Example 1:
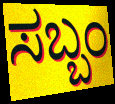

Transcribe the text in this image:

ಸಬ್ಬಂ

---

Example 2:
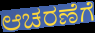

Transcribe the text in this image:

ಆಚರಣೆಗೆ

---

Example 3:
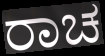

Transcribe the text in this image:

ರಾಚ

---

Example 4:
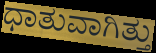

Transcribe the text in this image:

ಧಾತುವಾಗಿತ್ತು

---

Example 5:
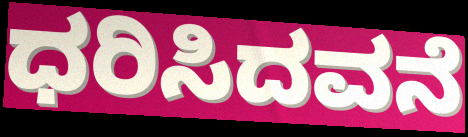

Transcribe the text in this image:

ಧರಿಸಿದವನೆ